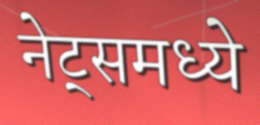
नेट्समध्ये